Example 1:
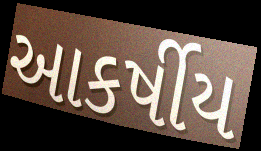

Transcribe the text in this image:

આકર્ષીય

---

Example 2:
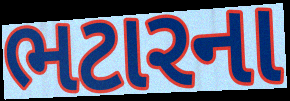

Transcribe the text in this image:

ભટારના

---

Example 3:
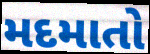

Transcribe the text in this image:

મદમાતો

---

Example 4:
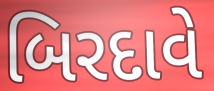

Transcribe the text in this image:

બિરદાવે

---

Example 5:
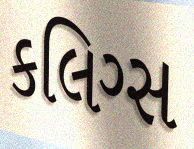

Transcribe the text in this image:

કલિગ્સ